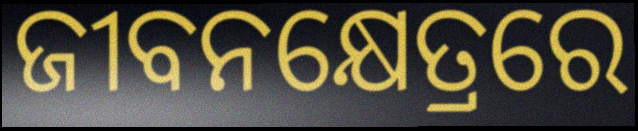
ଜୀବନକ୍ଷେତ୍ରରେ